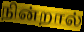
நின்றால்